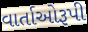
વાર્તાઓરૂપી